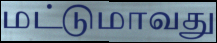
மட்டுமாவது